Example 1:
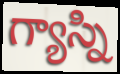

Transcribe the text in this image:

గ్యాస్ని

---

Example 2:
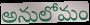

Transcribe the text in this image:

అనులోమం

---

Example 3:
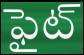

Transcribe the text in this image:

ఫైట్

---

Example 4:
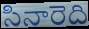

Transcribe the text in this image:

సినారెది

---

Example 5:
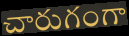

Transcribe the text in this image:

చారుగంగా